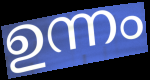
ഉന്നം